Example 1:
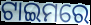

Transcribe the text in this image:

ଟାଇମରେ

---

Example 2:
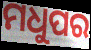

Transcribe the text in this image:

ମଧୁପର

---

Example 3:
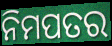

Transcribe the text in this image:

ନିମପତର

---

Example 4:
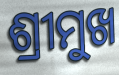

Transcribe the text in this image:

ଶ୍ରୀମୁଖ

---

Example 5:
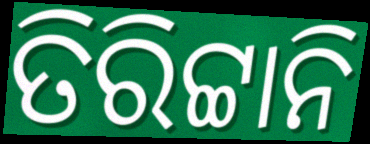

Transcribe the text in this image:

ତିରିଟ୍ଟାନି